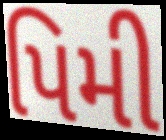
પિમી